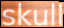
skull